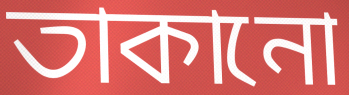
তাকানো